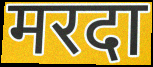
मरदा